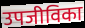
उपजीविका